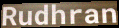
Rudhran